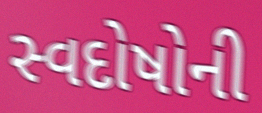
સ્વદોષોની